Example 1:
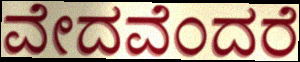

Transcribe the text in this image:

ವೇದವೆಂದರೆ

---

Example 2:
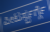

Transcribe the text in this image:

ಪೀಟರ್ಸ್ಬರ್ಗ್ಗೆ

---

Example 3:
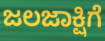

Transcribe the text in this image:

ಜಲಜಾಕ್ಷಿಗೆ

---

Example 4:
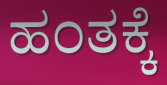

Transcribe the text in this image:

ಹಂತಕ್ಕೆ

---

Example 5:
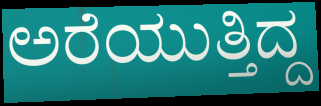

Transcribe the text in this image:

ಅರೆಯುತ್ತಿದ್ದ